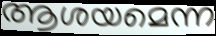
ആശയമെന്ന